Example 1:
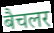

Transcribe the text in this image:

बैचलर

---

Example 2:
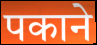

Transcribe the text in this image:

पकाने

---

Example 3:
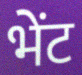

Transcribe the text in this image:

भेंट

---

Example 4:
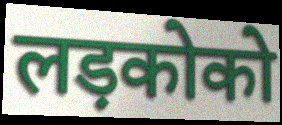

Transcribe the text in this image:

लड़कोको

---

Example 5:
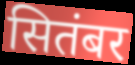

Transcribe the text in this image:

सितंबर